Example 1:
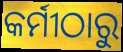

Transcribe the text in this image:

କର୍ମୀଠାରୁ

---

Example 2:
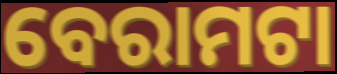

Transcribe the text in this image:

ବେରାମଟା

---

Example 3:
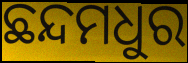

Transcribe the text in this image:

ଛନ୍ଦମଧୁର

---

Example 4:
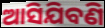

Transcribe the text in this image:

ଆସିଯିବଣି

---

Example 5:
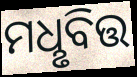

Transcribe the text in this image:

ମଧୢବିତ୍ତ